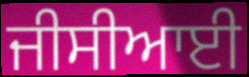
ਜੀਸੀਆਈ